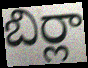
బిర్లా